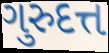
ગુરુદત્ત